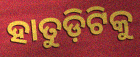
ହାତୁଡ଼ିଟିକୁ